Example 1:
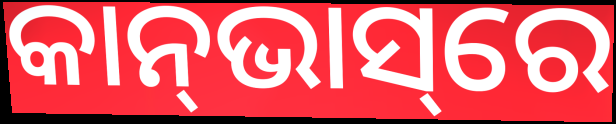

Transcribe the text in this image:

କାନ୍‌ଭାସ୍‌ରେ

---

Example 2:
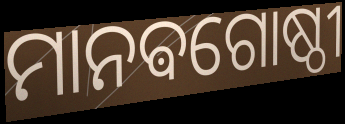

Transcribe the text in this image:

ମାନଵଗୋଷ୍ଠୀ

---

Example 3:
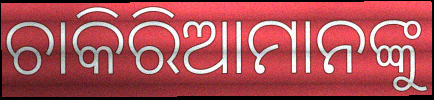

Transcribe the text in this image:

ଚାକିରିଆମାନଙ୍କୁ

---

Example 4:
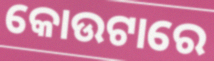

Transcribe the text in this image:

କୋଉଟାରେ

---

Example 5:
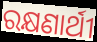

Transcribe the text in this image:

ରକ୍ଷଣାର୍ଥୀ